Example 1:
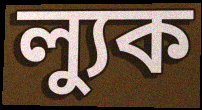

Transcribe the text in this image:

ল্যুক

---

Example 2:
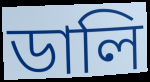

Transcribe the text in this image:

ডালি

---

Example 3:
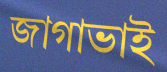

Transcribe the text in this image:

জাগাভাই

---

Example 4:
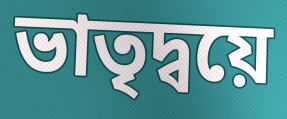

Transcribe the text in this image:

ভাতৃদ্বয়ে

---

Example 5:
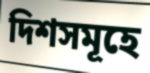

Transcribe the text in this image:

দিশসমূহে